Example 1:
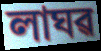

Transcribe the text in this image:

লাঘৱ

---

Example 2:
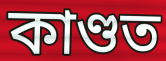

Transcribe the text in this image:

কাণ্ডত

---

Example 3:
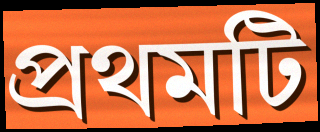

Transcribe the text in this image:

প্ৰথমটি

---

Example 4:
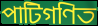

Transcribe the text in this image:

পাটিগণিত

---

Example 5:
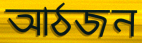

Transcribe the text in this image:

আঠজন